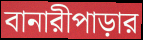
বানারীপাড়ার